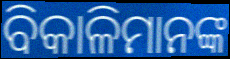
ବିକାଳିମାନଙ୍କ